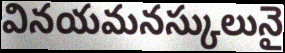
వినయమనస్కులునై